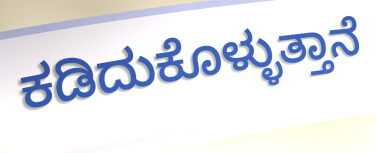
ಕಡಿದುಕೊಳ್ಳುತ್ತಾನೆ